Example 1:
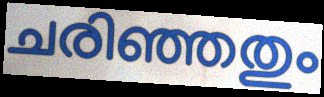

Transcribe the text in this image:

ചരിഞ്ഞതും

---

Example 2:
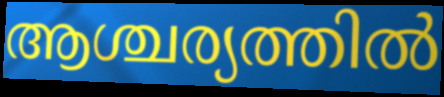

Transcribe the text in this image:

ആശ്ചര്യത്തിൽ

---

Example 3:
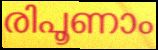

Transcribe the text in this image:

രിപൂണാം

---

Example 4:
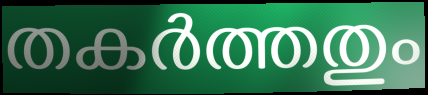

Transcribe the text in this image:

തകർത്തതും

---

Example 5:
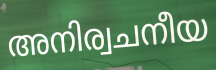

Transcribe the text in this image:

അനിര്വചനീയ